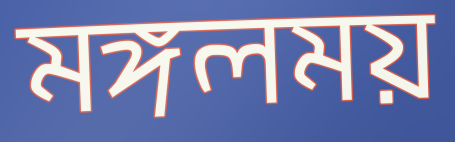
মঙ্গলময়